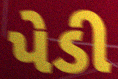
પેડી